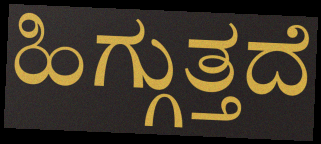
ಹಿಗ್ಗುತ್ತದೆ